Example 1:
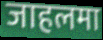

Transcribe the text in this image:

जाहलमा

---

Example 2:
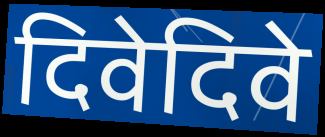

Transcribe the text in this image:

दिवेदिवे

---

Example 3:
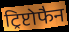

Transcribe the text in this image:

ट्रिप्टोफैन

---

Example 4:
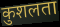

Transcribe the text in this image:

कुशलता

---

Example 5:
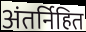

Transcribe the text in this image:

अंतर्निहित